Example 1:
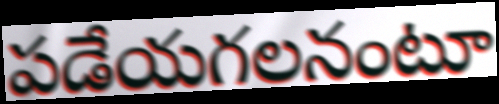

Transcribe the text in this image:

పడేయగలనంటూ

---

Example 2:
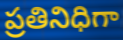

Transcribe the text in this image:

ప్రతినిధిగా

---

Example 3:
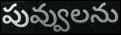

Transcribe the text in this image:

పువ్వులను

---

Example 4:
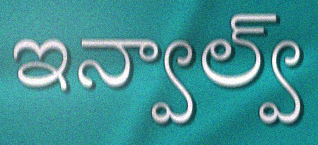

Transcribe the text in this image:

ఇన్వాల్వ్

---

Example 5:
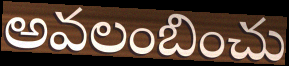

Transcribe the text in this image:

అవలంబించు